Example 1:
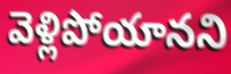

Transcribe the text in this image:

వెళ్లిపోయానని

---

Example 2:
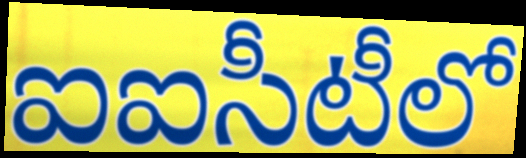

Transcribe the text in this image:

ఐఐసీటీలో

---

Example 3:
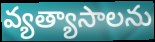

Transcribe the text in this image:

వ్యత్యాసాలను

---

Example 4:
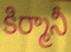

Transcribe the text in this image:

కిర్మానీ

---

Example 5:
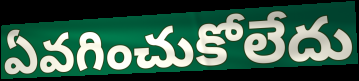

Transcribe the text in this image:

ఏవగించుకోలేదు